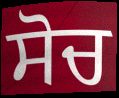
ਸੋਚ